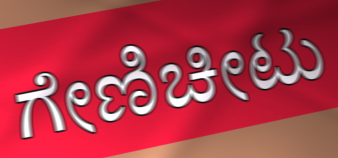
ಗೇಣಿಚೀಟು